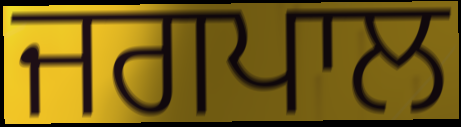
ਜਗਪਾਲ